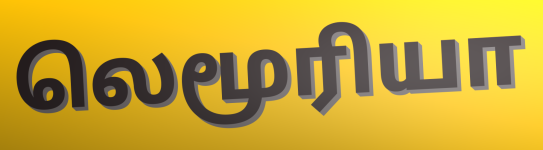
லெமூரியா